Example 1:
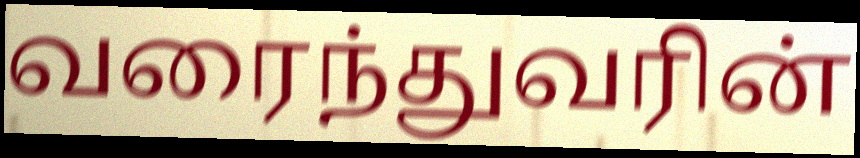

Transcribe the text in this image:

வரைந்துவரின்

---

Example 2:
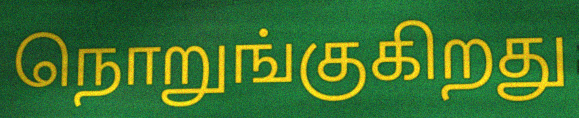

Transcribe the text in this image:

நொறுங்குகிறது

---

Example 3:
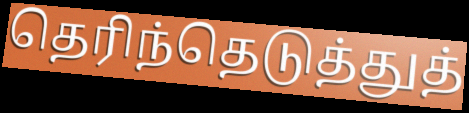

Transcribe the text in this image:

தெரிந்தெடுத்துத்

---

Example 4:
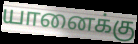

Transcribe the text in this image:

யானைக்கு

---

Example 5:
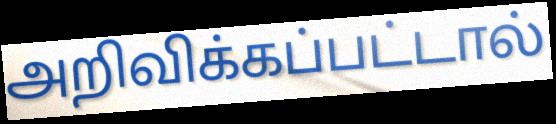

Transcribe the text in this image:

அறிவிக்கப்பட்டால்